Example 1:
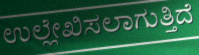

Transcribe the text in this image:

ಉಲ್ಲೇಖಿಸಲಾಗುತ್ತಿದೆ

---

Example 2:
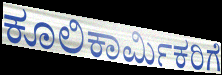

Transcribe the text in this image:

ಕೂಲಿಕಾರ್ಮಿಕರಿಗೆ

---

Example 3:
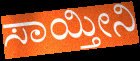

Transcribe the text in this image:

ಸಾಯ್ತೀನಿ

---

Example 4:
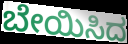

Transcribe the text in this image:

ಬೇಯಿಸಿದ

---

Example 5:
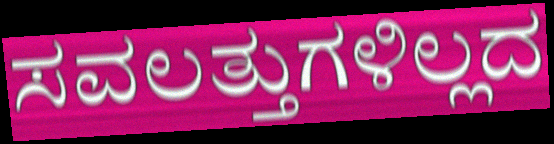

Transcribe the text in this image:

ಸವಲತ್ತುಗಳಿಲ್ಲದ